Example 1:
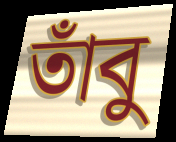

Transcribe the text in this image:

তাঁবু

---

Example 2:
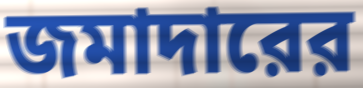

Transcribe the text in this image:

জমাদারের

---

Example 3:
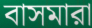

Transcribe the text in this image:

বাসমারা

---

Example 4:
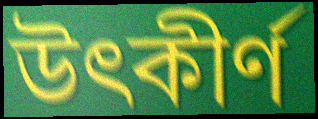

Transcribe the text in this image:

উৎকীর্ণ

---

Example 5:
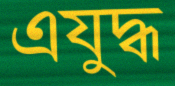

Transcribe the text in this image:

এযুদ্ধ